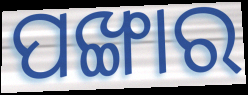
ପଙ୍ଖାର